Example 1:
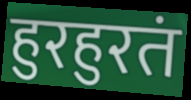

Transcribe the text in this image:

हुरहुरतं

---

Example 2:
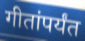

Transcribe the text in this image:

गीतांपर्यंत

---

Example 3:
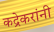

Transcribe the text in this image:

कद्रेकरांनी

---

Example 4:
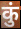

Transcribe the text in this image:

कुं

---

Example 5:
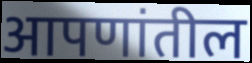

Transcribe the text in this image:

आपणांतील